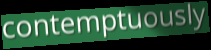
contemptuously